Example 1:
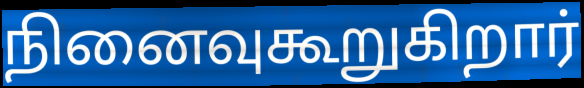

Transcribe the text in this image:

நினைவுகூறுகிறார்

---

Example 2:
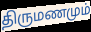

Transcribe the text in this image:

திருமணமும்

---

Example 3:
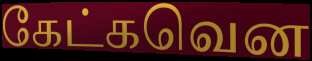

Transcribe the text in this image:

கேட்கவென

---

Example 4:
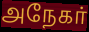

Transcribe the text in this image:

அநேகர்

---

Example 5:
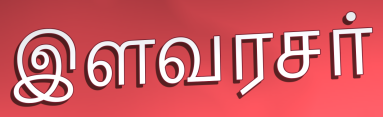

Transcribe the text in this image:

இளவரசர்